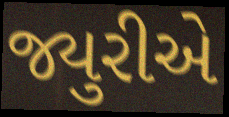
જ્યુરીએ